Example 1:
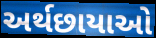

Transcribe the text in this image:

અર્થછાયાઓ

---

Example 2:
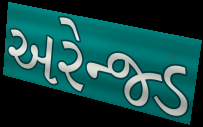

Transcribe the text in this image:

અરેન્જ્ડ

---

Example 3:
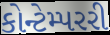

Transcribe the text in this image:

કોન્ટેમ્પરરી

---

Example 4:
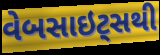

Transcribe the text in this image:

વેબસાઇટ્સથી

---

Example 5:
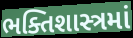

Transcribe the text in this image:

ભક્તિશાસ્ત્રમાં